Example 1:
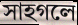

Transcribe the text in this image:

সাহগলে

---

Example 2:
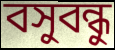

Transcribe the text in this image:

বসুবন্ধু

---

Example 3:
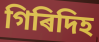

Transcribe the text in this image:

গিৰিদিহ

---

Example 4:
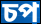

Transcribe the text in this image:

চপ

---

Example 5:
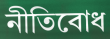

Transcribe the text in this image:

নীতিবোধ